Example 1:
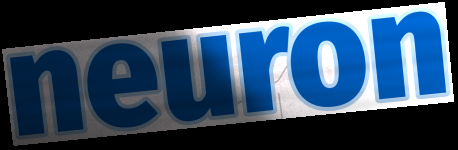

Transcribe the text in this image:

neuron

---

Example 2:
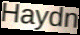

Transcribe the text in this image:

Haydn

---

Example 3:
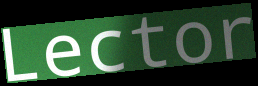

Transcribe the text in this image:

Lector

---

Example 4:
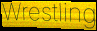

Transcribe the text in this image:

Wrestling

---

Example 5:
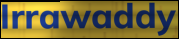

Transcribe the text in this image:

Irrawaddy